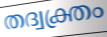
തദ്വക്ത്രം